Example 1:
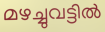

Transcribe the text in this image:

മഴച്ചുവട്ടിൽ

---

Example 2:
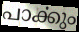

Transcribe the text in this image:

പാൎക്കും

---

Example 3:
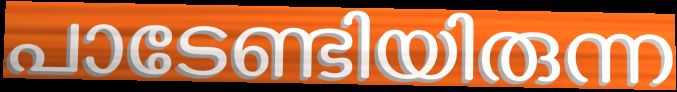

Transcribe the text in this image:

പാടേണ്ടിയിരുന്ന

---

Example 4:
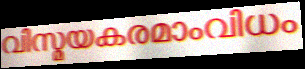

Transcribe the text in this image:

വിസ്മയകരമാംവിധം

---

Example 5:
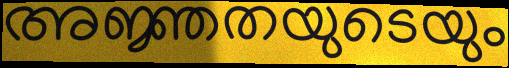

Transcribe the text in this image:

അജ്ഞതയുടെയും